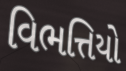
વિભત્તિયો